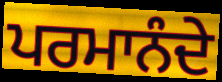
ਪਰਮਾਨੰਦੇ